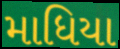
માધિયા